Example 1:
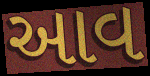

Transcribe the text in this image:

આવ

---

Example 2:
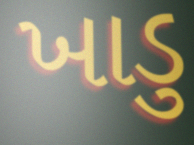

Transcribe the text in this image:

ખાડુ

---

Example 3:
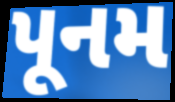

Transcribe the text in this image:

પૂનમ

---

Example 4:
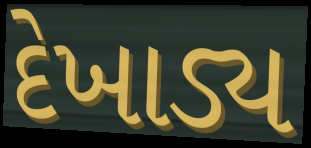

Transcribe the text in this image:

દેખાડ્ય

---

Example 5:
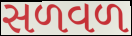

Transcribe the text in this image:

સળવળ